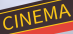
CINEMA